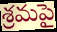
శ్రమపై